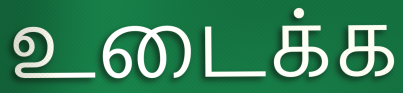
உடைக்க